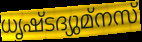
ധൃഷ്ടദ്യുമ്നസ്